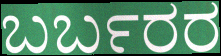
ಬರ್ಬರರ